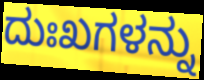
ದುಃಖಗಳನ್ನು